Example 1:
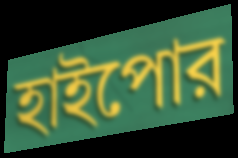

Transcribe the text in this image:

হাইপোর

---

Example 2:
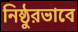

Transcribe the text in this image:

নিষ্ঠুরভাবে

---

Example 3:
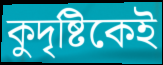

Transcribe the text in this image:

কুদৃষ্টিকেই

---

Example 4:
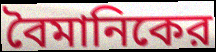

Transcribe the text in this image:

বৈমানিকের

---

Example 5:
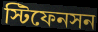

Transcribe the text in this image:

স্টিফেনসন